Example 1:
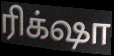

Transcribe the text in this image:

ரிக்‌ஷா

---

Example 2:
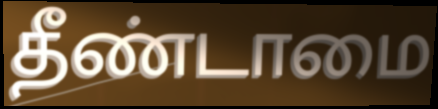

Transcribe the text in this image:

தீண்டாமை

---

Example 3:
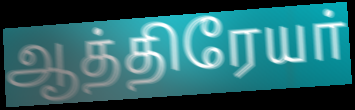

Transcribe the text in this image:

ஆத்திரேயர்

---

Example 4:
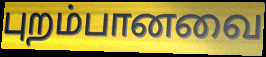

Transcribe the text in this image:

புறம்பானவை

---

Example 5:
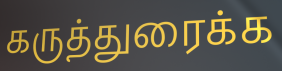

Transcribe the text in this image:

கருத்துரைக்க